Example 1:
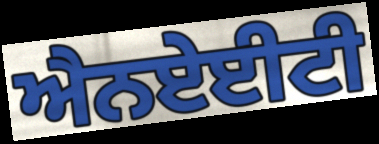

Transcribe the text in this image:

ਐਨਏਈਟੀ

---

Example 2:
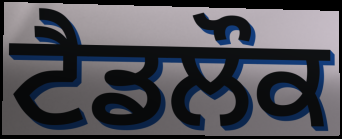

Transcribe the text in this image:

ਟੈਡਲੌਕ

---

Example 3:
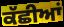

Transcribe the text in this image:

ਕੱਛੀਆਂ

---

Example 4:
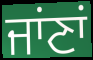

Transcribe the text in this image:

ਜਾਂਣਾਂ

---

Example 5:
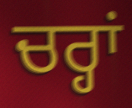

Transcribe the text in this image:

ਚਰ੍ਹਾਂ